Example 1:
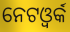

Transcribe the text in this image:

ନେଟଓ୍ବର୍କ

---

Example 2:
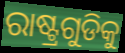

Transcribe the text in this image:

ରାଷ୍ଟ୍ରଗୁଡିକୁ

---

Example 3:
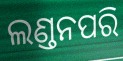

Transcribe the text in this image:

ଲଣ୍ଡନପରି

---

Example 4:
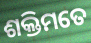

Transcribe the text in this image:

ଶକ୍ତିମତେ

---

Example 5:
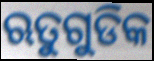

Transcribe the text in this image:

ଋତୁଗୁଡିକ